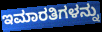
ಇಮಾರತಿಗಳನ್ನು